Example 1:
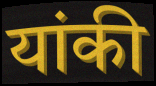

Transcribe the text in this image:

यांकी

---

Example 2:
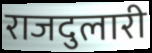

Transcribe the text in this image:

राजदुलारी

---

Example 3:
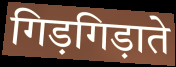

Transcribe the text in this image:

गिड़गिड़ाते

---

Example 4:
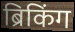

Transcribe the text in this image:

ब्रिकिंग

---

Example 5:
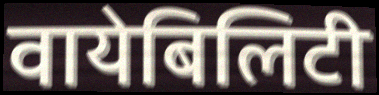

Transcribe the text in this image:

वायेबिलिटी